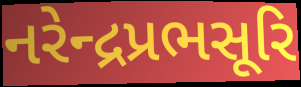
નરેન્દ્રપ્રભસૂરિ